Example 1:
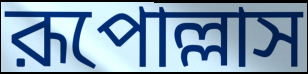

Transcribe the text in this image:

রূপোল্লাস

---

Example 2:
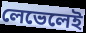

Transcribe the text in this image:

লেভেলেই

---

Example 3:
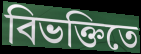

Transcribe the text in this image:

বিভক্তিতে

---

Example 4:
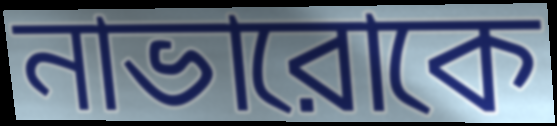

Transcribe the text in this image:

নাভারোকে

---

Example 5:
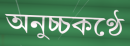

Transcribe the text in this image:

অনুচ্চকণ্ঠে